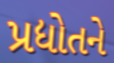
પ્રદ્યોતને